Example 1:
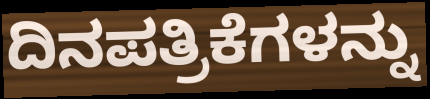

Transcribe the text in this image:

ದಿನಪತ್ರಿಕೆಗಳನ್ನು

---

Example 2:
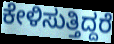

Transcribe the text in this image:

ಕೇಳಿಸುತ್ತಿದ್ದರೆ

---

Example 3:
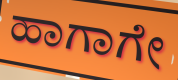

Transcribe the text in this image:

ಹಾಗಾಗೇ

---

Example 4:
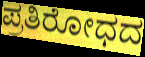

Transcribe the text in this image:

ಪ್ರತಿರೋಧದ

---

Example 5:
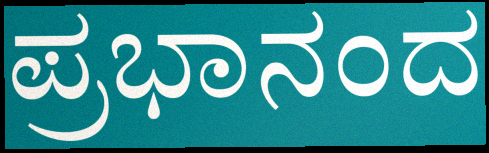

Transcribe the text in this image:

ಪ್ರಭಾನಂದ